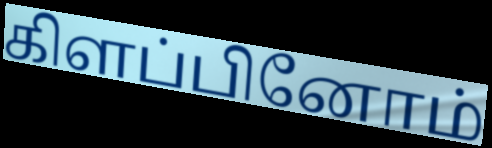
கிளப்பினோம்